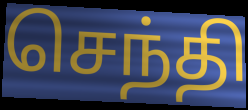
செந்தி